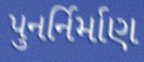
પુનર્નિર્માણ